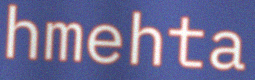
hmehta